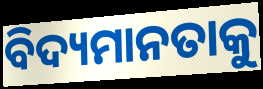
ବିଦ୍ୟମାନତାକୁ